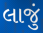
લાજું